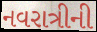
નવરાત્રીની